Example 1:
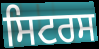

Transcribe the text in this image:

ਸਿਟਰਸ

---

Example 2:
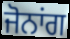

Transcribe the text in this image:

ਜੋਨਾਂਗ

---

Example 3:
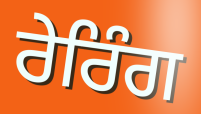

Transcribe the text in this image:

ਰੇਰਿੰਗ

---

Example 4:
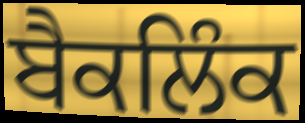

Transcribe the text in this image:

ਬੈਕਲਿੰਕ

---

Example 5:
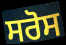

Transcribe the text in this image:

ਸਰੋਸ